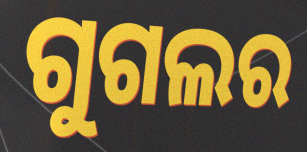
ଗୁଗଲର